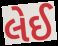
લેઈ